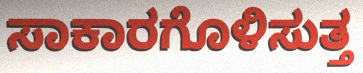
ಸಾಕಾರಗೊಳಿಸುತ್ತ